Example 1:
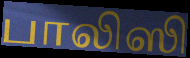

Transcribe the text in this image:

பாலிஸி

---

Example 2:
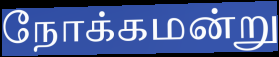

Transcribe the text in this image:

நோக்கமன்று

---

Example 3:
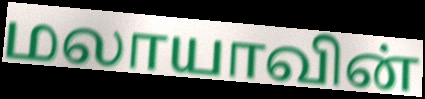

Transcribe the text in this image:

மலாயாவின்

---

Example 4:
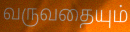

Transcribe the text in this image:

வருவதையும்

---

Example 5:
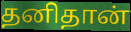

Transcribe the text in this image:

தனிதான்